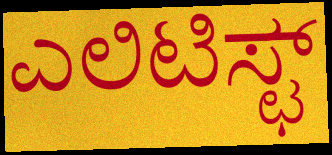
ಎಲಿಟಿಸ್ಟ್